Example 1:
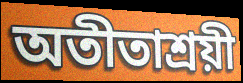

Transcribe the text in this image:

অতীতাশ্রয়ী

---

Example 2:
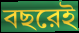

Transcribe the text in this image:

বছরেই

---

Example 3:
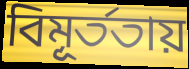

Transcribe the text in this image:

বিমূর্ততায়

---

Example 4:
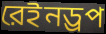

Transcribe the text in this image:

রেইনড্রপ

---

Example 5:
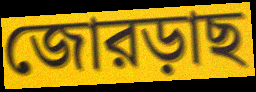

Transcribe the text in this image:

জোরড়াছ